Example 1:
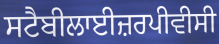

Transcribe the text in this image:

ਸਟੈਬੀਲਾਈਜ਼ਰਪੀਵੀਸੀ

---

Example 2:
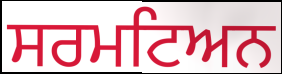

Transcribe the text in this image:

ਸਰਮਟਿਅਨ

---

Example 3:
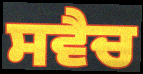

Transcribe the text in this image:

ਸਵੈਚ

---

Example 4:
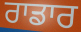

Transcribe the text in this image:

ਰਾਡਾਰ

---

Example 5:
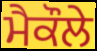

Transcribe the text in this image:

ਮੈਕੌਲੇ